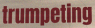
trumpeting